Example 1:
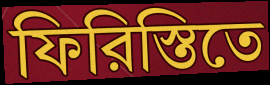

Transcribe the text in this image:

ফিরিস্তিতে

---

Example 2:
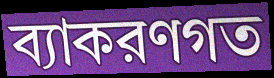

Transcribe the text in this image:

ব্যাকরণগত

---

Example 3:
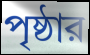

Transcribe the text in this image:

পৃষ্ঠার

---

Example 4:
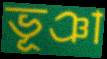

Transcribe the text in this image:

ভূঞা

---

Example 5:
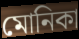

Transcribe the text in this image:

মোনিকা